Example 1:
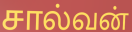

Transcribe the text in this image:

சால்வன்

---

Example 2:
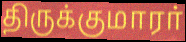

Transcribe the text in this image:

திருக்குமாரர்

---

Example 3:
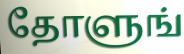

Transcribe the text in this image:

தோளுங்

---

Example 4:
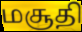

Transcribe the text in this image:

மசூதி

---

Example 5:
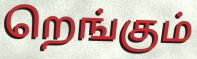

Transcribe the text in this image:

றெங்கும்